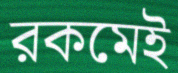
রকমেই